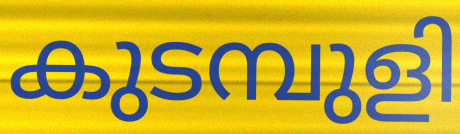
കുടമ്പുളി